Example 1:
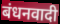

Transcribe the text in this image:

बंधनवादी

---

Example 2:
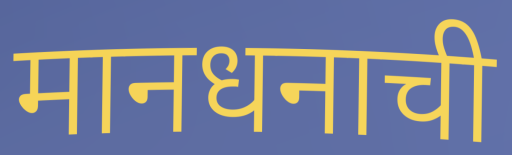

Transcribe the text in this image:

मानधनाची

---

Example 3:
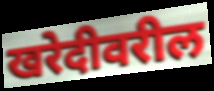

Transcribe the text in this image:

खरेदीवरील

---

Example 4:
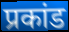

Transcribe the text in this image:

प्रकांड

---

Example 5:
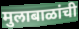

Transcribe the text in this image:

मुलाबाळांची